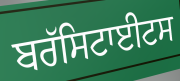
ਬਰੱਸਿਟਾਈਟਸ